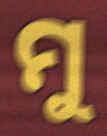
ମୁ